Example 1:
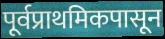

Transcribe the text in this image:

पूर्वप्राथमिकपासून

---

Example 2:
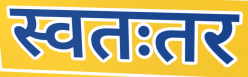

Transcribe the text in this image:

स्वतःतर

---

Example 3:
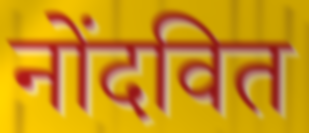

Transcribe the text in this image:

नोंदवित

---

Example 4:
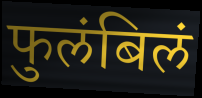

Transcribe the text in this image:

फुलंबिलं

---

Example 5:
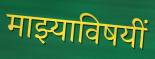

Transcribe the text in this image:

माझ्याविषयीं